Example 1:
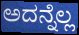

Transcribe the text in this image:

ಅದನ್ನೆಲ್ಲ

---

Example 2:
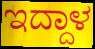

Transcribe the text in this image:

ಇದ್ದಾಳ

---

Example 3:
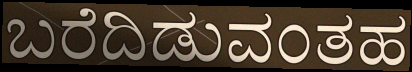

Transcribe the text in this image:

ಬರೆದಿಡುವಂತಹ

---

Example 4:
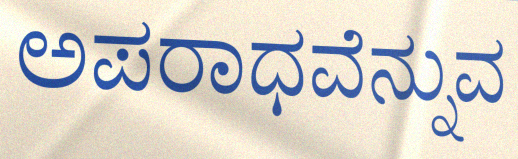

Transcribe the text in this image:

ಅಪರಾಧವೆನ್ನುವ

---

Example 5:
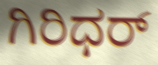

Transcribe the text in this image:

ಗಿರಿಧರ್